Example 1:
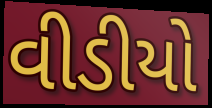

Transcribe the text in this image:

વીડીયો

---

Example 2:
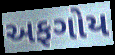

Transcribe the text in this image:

અફગોય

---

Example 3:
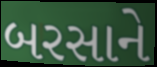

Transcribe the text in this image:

બરસાને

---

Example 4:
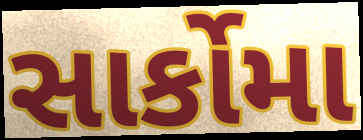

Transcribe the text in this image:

સાર્કોમા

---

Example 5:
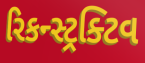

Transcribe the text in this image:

રિકન્સ્ટ્રક્ટિવ